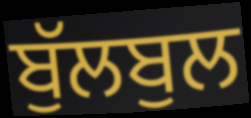
ਬੁੱਲਬੁਲ